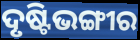
ଦୃଷ୍ଟିଭଙ୍ଗୀର